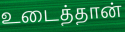
உடைத்தான்